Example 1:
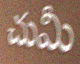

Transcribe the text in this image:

చుమీ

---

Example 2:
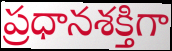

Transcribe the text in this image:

ప్రధానశక్తిగా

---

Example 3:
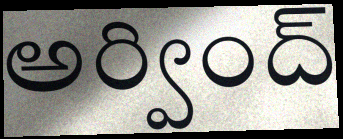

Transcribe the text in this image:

అర్వింద్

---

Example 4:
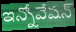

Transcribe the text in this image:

ఇన్నోవేషన్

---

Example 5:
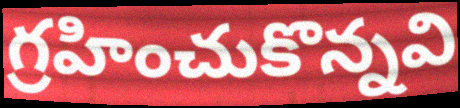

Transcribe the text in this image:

గ్రహించుకొన్నవి